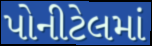
પોનીટેલમાં